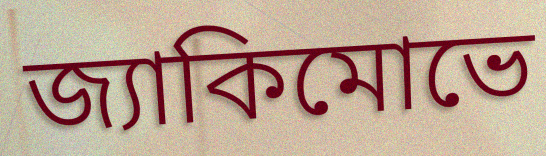
জ্যাকিমোভে